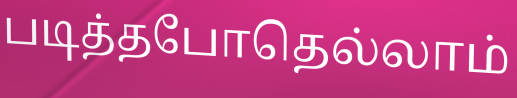
படித்தபோதெல்லாம்